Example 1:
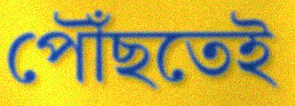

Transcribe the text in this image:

পৌঁছতেই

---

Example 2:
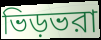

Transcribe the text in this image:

ভিড়ভরা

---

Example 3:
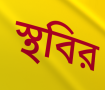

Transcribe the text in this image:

স্থবির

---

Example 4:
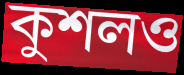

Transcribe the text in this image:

কুশলও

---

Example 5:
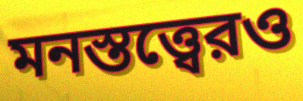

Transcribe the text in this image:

মনস্তত্ত্বেরও